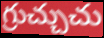
గ్రుచ్చుచు